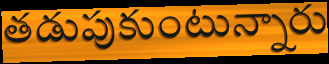
తడుపుకుంటున్నారు